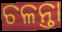
ଚଳନ୍ତା